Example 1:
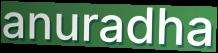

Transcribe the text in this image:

anuradha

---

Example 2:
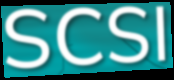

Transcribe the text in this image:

SCSI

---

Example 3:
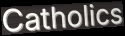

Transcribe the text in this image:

Catholics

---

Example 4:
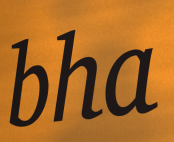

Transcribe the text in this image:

bha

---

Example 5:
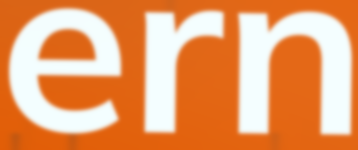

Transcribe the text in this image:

ern